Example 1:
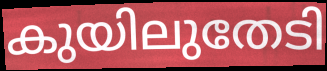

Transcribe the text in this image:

കുയിലുതേടി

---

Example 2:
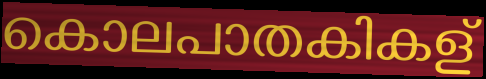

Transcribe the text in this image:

കൊലപാതകികള്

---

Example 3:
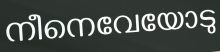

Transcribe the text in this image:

നീനെവേയോടു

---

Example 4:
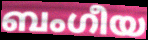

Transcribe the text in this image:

ബംഗീയ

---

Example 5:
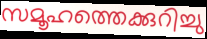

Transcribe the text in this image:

സമൂഹത്തെക്കുറിച്ചു